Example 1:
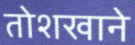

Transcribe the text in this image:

तोशखाने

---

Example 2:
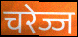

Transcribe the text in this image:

चरेज्ज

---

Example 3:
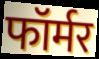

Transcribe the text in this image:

फॉर्मर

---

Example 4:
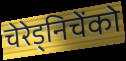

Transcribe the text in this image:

चेरेड्निचेंको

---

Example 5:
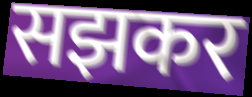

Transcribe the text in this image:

सझकर